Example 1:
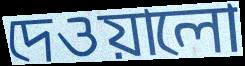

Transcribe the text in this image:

দেওয়ালো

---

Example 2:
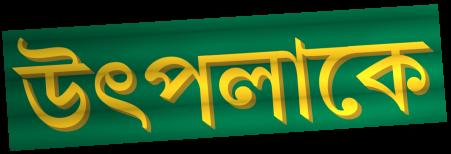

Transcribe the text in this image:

উৎপলাকে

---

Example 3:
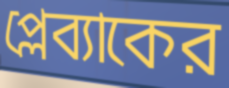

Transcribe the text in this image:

প্লেব্যাকের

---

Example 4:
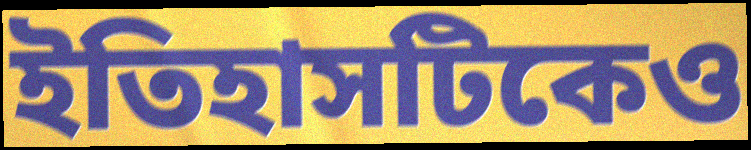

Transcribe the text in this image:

ইতিহাসটিকেও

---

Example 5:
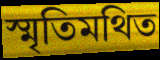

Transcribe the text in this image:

স্মৃতিমথিত